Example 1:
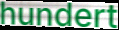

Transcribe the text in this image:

hundert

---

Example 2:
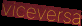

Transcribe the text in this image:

viceversa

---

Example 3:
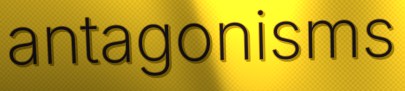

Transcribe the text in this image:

antagonisms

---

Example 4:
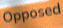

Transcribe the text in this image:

Opposed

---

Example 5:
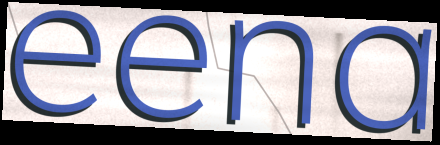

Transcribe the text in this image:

eena